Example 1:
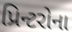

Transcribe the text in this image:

પ્રિન્ટરોના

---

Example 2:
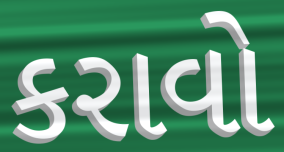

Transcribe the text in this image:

કરાવો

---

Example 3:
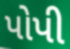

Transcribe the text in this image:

પોપી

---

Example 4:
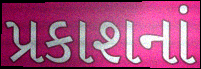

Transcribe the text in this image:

પ્રકાશનાં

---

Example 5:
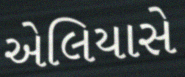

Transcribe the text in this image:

એલિયાસે